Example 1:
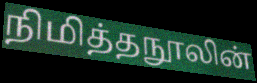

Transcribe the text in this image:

நிமித்தநூலின்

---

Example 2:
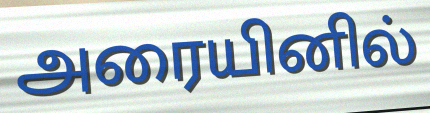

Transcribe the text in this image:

அரையினில்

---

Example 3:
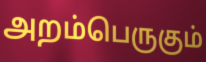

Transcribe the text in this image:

அறம்பெருகும்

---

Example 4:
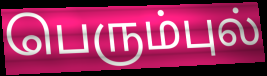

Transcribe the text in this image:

பெரும்புல்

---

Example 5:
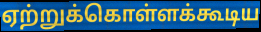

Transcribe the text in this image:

ஏற்றுக்கொள்ளக்கூடிய